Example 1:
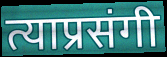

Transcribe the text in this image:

त्याप्रसंगी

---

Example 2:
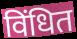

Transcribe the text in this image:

विंधित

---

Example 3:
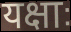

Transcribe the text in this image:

यक्षाः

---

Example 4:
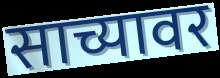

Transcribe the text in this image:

साच्यावर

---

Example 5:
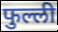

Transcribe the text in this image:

फुल्ली